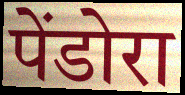
पेंडोरा